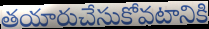
తయారుచేసుకోవటానికి